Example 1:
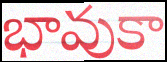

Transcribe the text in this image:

భావుకా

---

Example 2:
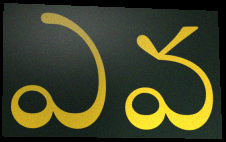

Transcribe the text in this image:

ఎవ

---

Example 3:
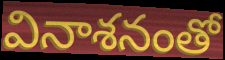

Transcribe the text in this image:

వినాశనంతో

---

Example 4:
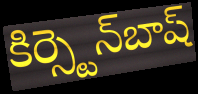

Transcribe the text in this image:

కిర్స్టెన్‌బాష్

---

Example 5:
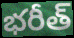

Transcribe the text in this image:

భరీత్